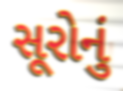
સૂરોનું